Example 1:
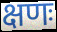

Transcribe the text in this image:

क्षणः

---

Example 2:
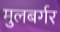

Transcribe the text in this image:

मुलबर्गर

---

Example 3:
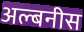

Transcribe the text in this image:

अल्बनीस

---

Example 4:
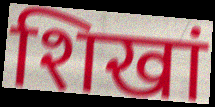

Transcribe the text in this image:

शिखां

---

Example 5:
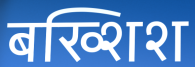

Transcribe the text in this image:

बख्शिश